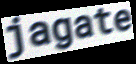
jagate